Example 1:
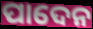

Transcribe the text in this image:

ପାଦେନ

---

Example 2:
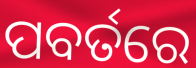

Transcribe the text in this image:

ପବର୍ତରେ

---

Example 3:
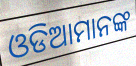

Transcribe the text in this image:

ଓଡିଆମାନଙ୍କ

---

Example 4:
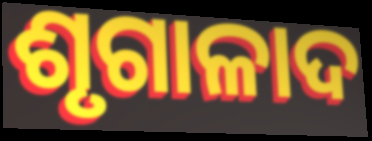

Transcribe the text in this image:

ଶୃଗାଳାଦ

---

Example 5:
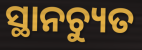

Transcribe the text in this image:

ସ୍ଥାନଚ୍ୟୁତ